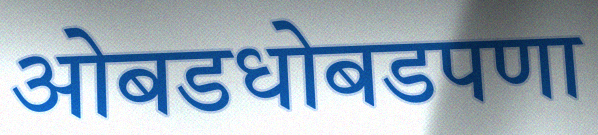
ओबडधोबडपणा